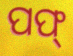
ପଫ୍